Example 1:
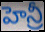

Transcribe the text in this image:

హెన్రీ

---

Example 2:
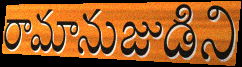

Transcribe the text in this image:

రామానుజుడిని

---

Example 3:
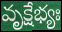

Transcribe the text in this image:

వృక్షేభ్యః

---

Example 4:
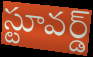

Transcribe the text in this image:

స్టూవర్డ్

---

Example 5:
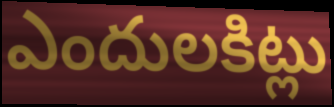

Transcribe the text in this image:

ఎందులకిట్లు